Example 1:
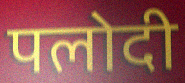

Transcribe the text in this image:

पलोदी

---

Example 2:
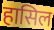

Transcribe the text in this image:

हासिल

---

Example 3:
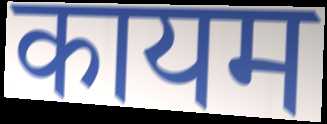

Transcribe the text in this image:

कायम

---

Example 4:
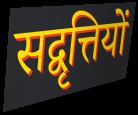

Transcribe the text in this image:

सद्वृत्तियों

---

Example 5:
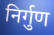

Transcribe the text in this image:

निर्गुण